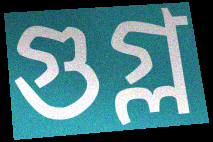
গুগ্ল